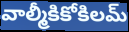
వాల్మీకికోకిలమ్